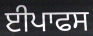
ਈਪਾਫਸ